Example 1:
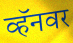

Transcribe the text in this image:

व्हॅनवर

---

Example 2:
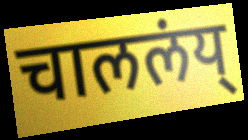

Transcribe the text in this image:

चाललंय्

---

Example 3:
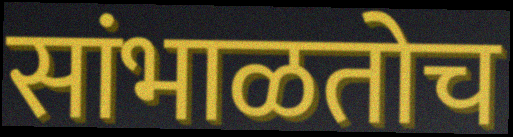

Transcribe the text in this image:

सांभाळतोच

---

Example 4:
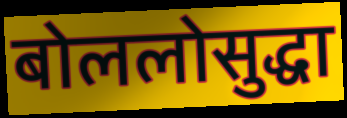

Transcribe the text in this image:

बोललोसुद्धा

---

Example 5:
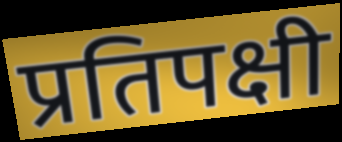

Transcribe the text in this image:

प्रतिपक्षी